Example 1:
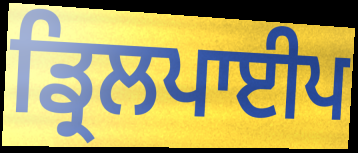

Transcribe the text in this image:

ਡ੍ਰਿਲਪਾਈਪ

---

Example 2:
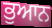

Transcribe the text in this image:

ਭੁਆਨ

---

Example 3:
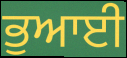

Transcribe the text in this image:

ਭੁਆਈ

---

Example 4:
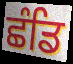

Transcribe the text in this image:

ਛੰਡਿ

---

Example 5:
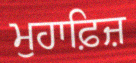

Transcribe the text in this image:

ਮੁਹਾਫ਼ਿਜ਼